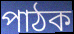
পাঠক